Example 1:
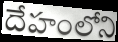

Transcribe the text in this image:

దేహంలోని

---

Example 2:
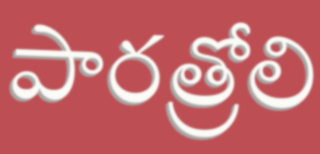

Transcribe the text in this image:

పారత్రోలి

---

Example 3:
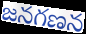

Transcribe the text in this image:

జనగణన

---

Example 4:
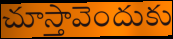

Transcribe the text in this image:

చూస్తావెందుకు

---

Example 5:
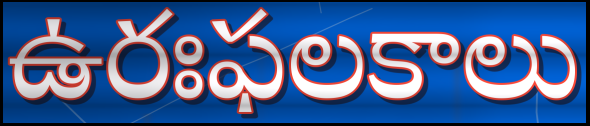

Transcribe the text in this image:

ఉరఃఫలకాలు